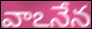
వాఽనేన